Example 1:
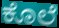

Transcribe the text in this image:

ಕೊಲೆ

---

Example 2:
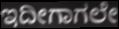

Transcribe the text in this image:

ಇದೀಗಾಗಲೇ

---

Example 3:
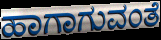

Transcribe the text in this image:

ಹಾಗಾಗುವಂತೆ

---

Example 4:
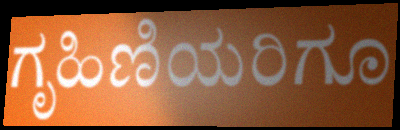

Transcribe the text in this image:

ಗೃಹಿಣಿಯರಿಗೂ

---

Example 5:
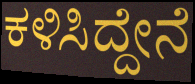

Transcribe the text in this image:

ಕಳಿಸಿದ್ದೇನೆ